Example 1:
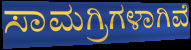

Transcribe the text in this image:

ಸಾಮಗ್ರಿಗಳಾಗಿವೆ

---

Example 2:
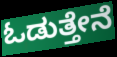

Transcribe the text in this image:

ಓಡುತ್ತೇನೆ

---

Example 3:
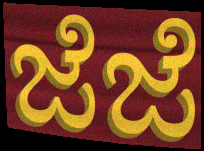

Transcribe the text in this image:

ಜೆಜೆ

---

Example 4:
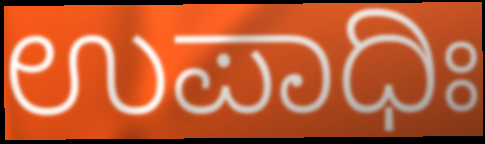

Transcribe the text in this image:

ಉಪಾಧಿಃ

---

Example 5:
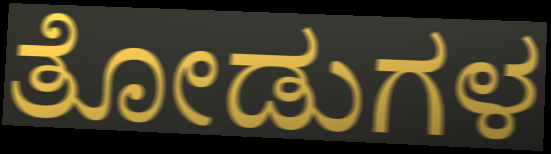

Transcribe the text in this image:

ತೋಡುಗಳ